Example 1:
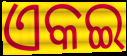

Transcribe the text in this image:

ଏକଇ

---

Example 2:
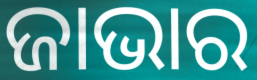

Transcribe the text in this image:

ଜାଭାର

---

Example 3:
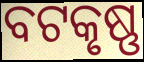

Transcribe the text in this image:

ବଟକୃଷ୍ଣ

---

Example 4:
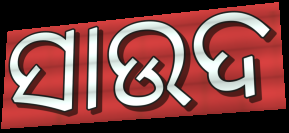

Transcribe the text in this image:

ସାଉଦ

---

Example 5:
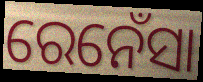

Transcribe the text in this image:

ରେନେଁସା